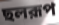
ছলরূপ